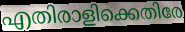
എതിരാളിക്കെതിരേ